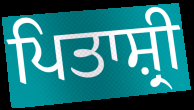
ਪਿਤਾਸ਼੍ਰੀ